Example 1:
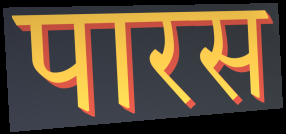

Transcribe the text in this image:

पारस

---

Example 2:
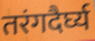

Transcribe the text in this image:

तरंगदैर्घ्य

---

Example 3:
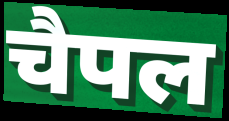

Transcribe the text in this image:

चैपल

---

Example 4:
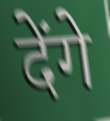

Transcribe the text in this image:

देंगे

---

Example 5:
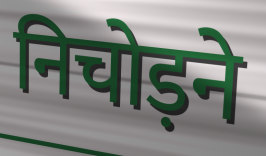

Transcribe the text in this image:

निचोड़ने